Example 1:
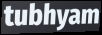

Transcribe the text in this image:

tubhyam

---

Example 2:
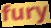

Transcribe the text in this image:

fury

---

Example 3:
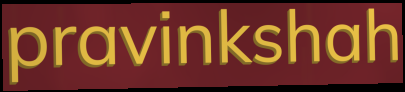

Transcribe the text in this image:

pravinkshah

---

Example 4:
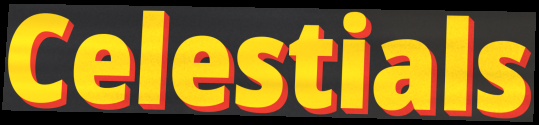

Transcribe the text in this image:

Celestials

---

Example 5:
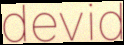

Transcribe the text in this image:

devid